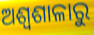
ଅଶ୍ୱଶାଳାରୁ